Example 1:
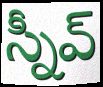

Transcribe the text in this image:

స్నీవ్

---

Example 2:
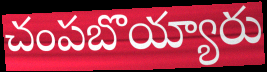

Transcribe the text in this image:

చంపబొయ్యారు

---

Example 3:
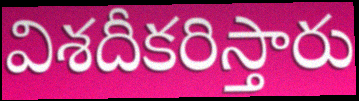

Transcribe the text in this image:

విశదీకరిస్తారు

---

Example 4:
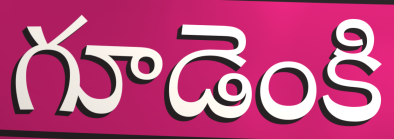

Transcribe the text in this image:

గూడెంకి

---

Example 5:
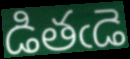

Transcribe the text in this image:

డితఁడె